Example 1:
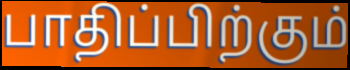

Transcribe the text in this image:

பாதிப்பிற்கும்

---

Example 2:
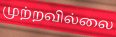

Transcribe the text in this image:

முற்றவில்லை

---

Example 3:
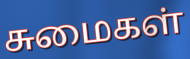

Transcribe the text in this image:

சுமைகள்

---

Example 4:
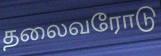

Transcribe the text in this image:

தலைவரோடு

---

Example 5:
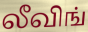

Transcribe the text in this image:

லீவிங்